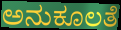
ಅನುಕೂಲತೆ